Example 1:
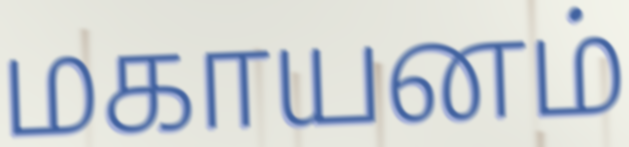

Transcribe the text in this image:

மகாயனம்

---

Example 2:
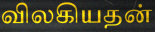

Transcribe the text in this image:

விலகியதன்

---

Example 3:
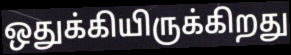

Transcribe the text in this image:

ஒதுக்கியிருக்கிறது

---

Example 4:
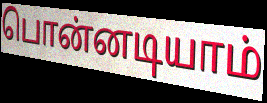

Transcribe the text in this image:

பொன்னடியாம்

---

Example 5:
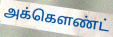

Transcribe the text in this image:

அக்கெளண்ட்